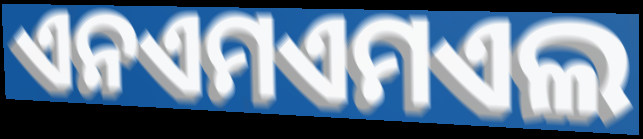
ଏନଏମଏମଏଲ